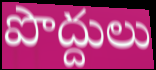
పొద్దులు